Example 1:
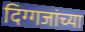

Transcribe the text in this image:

दिग्गजांच्या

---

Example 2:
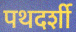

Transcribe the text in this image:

पथदर्शी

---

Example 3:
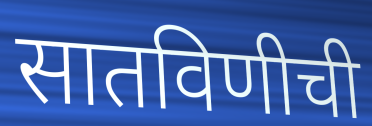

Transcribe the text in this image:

सातविणीची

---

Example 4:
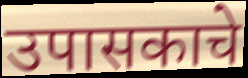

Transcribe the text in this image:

उपासकाचे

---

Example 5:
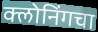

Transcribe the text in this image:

क्लोनिंगचा